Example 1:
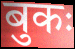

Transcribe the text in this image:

बुकः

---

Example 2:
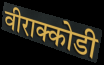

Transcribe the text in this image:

वीराक्कोडी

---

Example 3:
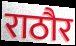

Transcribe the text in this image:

राठौर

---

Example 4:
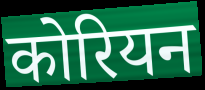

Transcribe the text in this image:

कोरियन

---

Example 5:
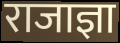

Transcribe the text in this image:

राजाज्ञा